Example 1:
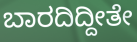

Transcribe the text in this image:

ಬಾರದಿದ್ದೀತೇ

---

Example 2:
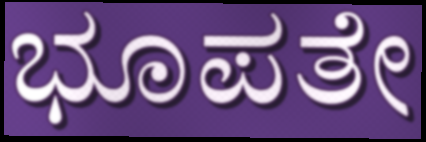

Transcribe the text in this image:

ಭೂಪತೇ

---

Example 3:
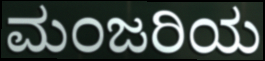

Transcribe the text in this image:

ಮಂಜರಿಯ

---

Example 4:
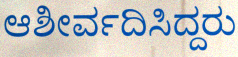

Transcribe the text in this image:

ಆಶೀರ್ವದಿಸಿದ್ದರು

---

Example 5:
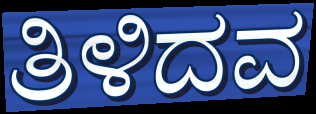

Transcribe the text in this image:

ತಿಳಿದವ